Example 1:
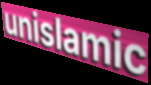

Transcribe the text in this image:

unislamic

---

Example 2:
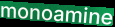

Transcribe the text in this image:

monoamine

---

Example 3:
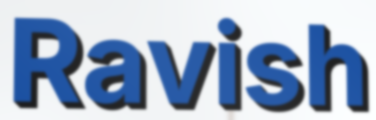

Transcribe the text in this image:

Ravish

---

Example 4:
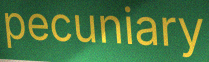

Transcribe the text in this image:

pecuniary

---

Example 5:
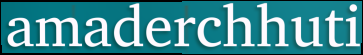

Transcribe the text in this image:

amaderchhuti